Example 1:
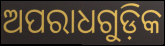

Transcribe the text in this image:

ଅପରାଧଗୁଡ଼ିକ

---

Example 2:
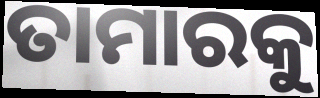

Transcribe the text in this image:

ତାମାରକୁ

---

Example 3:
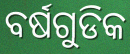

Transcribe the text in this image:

ବର୍ଷଗୁଡିକ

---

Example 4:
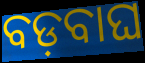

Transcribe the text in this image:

ବଡ଼ବାଘ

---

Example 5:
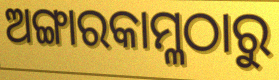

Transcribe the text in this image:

ଅଙ୍ଗାରକାମ୍ଳଠାରୁ